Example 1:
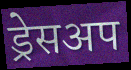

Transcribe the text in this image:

ड्रेसअप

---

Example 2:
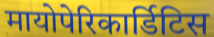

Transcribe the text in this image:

मायोपेरिकार्डिटिस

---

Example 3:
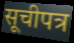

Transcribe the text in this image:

सूचीपत्र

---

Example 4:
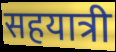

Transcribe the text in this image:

सहयात्री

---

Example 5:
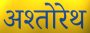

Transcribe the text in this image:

अश्तोरेथ